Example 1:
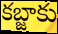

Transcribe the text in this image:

కబ్జాకు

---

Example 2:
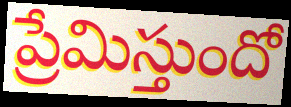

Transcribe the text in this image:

ప్రేమిస్తుందో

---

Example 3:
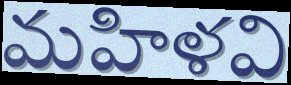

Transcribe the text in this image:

మహిళవి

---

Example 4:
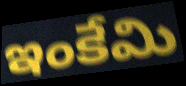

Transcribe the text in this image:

ఇంకేమి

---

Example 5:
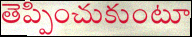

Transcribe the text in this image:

తెప్పించుకుంటూ